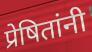
प्रेषितांनी